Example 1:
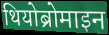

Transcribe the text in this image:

थियोब्रोमाइन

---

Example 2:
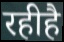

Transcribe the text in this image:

रहीहै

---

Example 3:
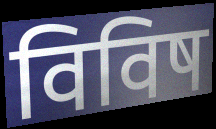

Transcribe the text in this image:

विविष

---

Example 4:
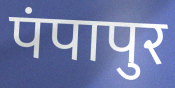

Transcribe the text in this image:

पंपापुर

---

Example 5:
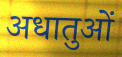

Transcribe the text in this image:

अधातुओं